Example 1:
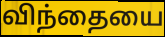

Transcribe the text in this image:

விந்தையை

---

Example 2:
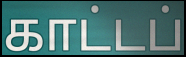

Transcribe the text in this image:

காட்டப்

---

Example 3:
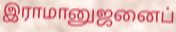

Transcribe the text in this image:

இராமானுஜனைப்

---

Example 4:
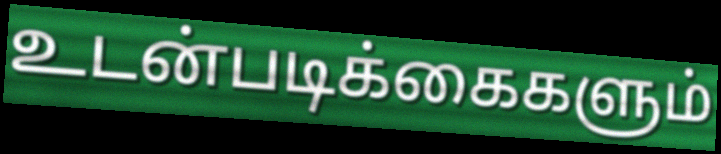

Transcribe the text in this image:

உடன்படிக்கைகளும்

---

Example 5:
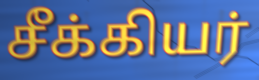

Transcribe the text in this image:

சீக்கியர்